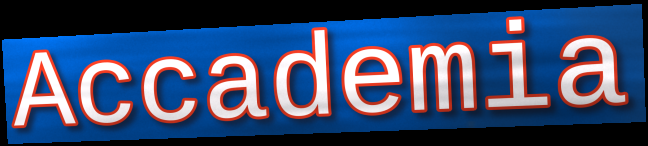
Accademia